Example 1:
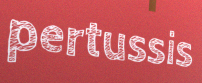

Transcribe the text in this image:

pertussis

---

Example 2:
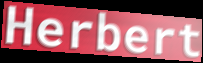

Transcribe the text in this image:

Herbert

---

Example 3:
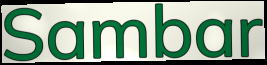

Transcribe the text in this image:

Sambar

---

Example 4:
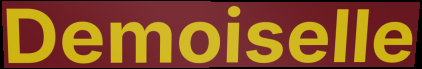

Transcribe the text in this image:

Demoiselle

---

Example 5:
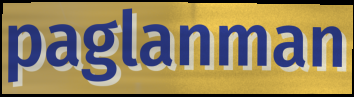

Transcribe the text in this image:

paglanman